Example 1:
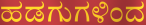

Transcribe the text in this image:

ಹಡಗುಗಳಿಂದ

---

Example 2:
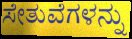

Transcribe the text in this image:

ಸೇತುವೆಗಳನ್ನು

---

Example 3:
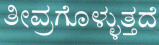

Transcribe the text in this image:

ತೀವ್ರಗೊಳ್ಳುತ್ತದೆ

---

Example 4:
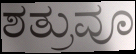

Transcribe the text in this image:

ಶತ್ರುವೂ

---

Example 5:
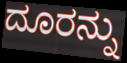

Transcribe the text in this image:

ದೂರನ್ನು